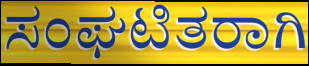
ಸಂಘಟಿತರಾಗಿ